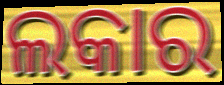
ଲକାର